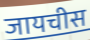
जायचीस